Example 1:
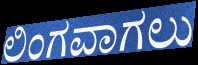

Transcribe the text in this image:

ಲಿಂಗವಾಗಲು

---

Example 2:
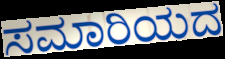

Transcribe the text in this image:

ಸಮಾರಿಯದ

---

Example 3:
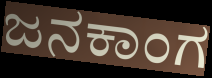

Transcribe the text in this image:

ಜನಕಾಂಗ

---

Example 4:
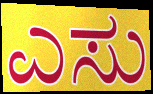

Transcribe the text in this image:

ಎಸು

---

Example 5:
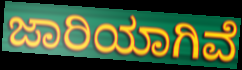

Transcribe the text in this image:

ಜಾರಿಯಾಗಿವೆ